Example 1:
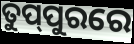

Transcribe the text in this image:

ତୁପ୍‌ପୁରରେ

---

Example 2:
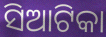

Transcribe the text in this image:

ସିଆଟିକା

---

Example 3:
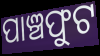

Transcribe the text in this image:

ପାଞ୍ଚଫୁଟ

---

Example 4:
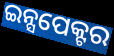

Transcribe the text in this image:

ଇନ୍ସପେକ୍ଟର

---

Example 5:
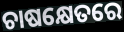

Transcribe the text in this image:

ଚାଷକ୍ଷେତରେ